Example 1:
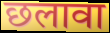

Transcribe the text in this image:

छलावा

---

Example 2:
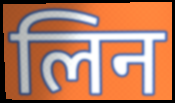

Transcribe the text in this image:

लिन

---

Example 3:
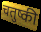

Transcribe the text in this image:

चतुष्की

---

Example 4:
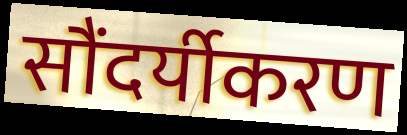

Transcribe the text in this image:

सौंदर्यीकरण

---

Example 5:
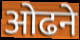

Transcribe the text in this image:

ओढने